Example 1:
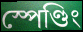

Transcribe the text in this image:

স্পেণ্ডিং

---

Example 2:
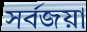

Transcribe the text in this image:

সৰ্বজয়া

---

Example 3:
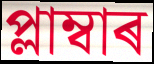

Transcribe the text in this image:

প্লাম্বাৰ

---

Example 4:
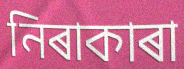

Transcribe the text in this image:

নিৰাকাৰা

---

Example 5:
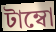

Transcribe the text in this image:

টাম্বো